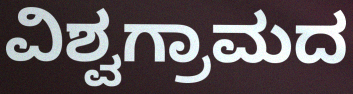
ವಿಶ್ವಗ್ರಾಮದ